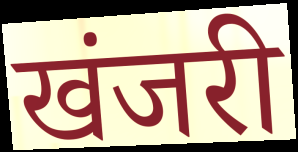
खंजरी